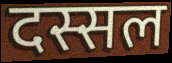
दस्सल